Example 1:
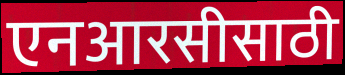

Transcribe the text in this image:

एनआरसीसाठी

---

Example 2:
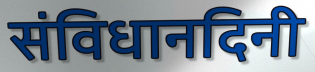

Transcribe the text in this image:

संविधानदिनी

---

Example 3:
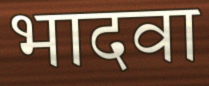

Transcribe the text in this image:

भादवा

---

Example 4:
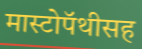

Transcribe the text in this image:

मास्टोपॅथीसह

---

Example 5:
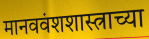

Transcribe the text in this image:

मानववंशशास्त्राच्या